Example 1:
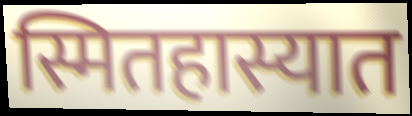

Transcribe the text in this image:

स्मितहास्यात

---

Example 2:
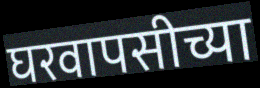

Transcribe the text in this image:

घरवापसीच्या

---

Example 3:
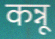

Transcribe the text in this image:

कन्नू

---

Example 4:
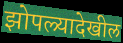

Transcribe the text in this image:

झोपल्यादेखील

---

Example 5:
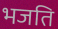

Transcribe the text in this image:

भजति